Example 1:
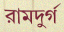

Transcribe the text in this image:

রামদুর্গ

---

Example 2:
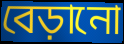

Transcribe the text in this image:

বেড়ানো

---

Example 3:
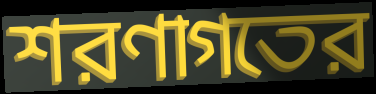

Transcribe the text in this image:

শরণাগতের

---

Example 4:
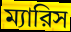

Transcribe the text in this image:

ম্যারিস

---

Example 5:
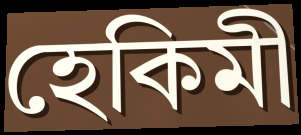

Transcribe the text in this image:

হেকিমী